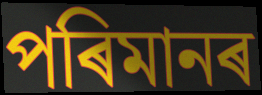
পৰিমানৰ